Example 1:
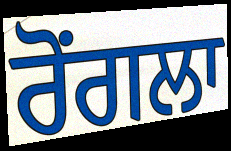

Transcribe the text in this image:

ਰੋਂਗਲਾ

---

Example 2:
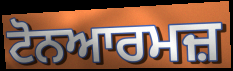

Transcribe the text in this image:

ਟੋਨਆਰਮਜ਼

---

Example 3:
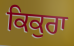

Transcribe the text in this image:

ਕਿਕੁਰਾ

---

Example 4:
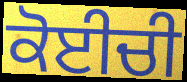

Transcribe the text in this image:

ਕੋਈਚੀ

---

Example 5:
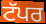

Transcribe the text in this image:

ਟੱਪਰ